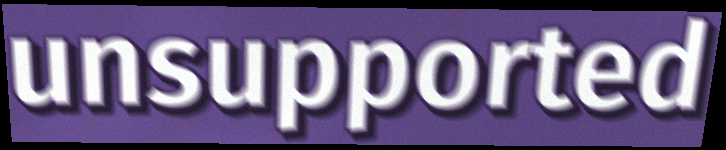
unsupported